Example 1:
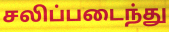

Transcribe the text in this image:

சலிப்படைந்து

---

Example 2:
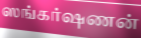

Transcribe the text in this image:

ஸங்கர்ஷணன்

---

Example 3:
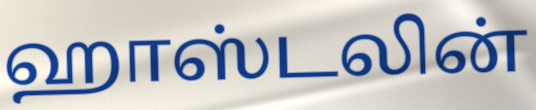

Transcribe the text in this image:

ஹாஸ்டலின்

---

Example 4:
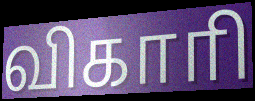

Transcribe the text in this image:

விகாரி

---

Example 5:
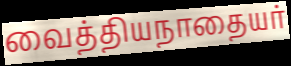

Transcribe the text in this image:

வைத்தியநாதையர்